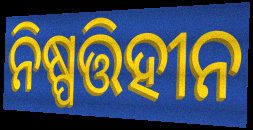
ନିଷ୍ପତ୍ତିହୀନ